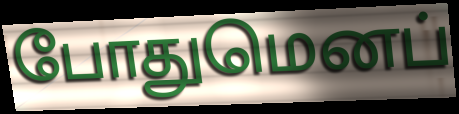
போதுமெனப்